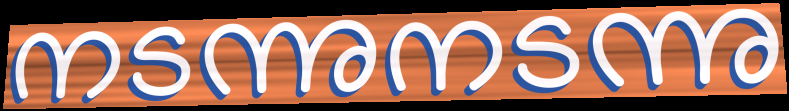
നടന്നുനടന്നു